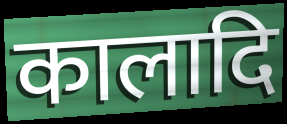
कालादि